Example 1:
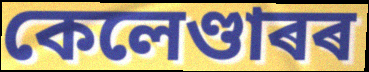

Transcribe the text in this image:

কেলেণ্ডাৰৰ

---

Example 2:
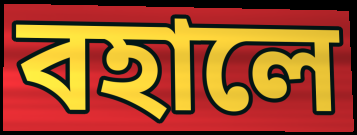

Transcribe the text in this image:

বহালে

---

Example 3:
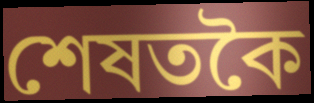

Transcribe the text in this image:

শেষতকৈ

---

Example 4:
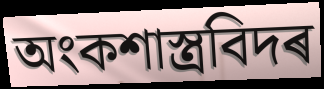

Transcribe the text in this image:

অংকশাস্ত্ৰবিদৰ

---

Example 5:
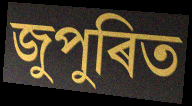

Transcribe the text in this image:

জুপুৰিত